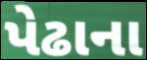
પેઢાના